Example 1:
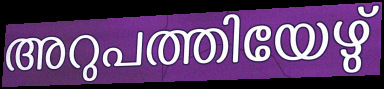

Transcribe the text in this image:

അറുപത്തിയേഴു്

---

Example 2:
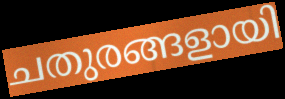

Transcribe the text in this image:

ചതുരങ്ങളായി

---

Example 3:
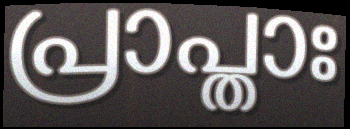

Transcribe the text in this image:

പ്രാപ്താഃ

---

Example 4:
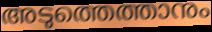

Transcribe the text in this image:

അടുത്തെത്താനും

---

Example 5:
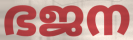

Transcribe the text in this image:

ഭജന